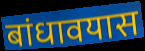
बांधावयास